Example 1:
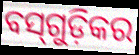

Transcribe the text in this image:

ବସ୍‌ଗୁଡ଼ିକର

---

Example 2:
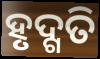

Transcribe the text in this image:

ହୃଦ୍ଗତି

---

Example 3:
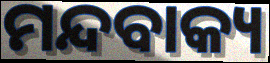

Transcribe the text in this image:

ମନ୍ଦବାକ୍ୟ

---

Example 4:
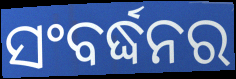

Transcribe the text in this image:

ସଂବର୍ଦ୍ଧନର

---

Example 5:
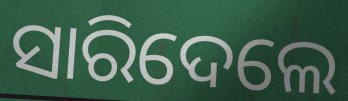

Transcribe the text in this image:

ସାରିଦେଲେ